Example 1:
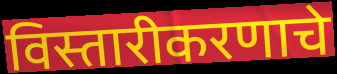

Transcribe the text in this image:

विस्तारीकरणाचे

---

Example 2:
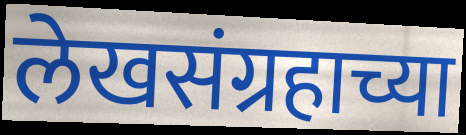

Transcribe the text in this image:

लेखसंग्रहाच्या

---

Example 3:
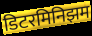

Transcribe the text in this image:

डिटरमिनिझम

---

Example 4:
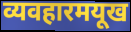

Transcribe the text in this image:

व्यवहारमयूख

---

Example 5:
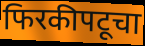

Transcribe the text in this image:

फिरकीपटूचा